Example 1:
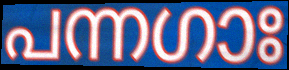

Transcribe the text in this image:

പന്നഗാഃ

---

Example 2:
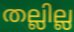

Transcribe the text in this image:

തല്ലില്ല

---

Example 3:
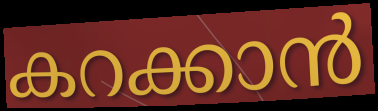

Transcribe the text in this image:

കറക്കാൻ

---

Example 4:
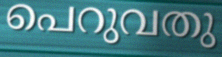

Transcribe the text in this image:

പെറുവതു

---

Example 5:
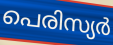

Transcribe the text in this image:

പെരിസ്യർ